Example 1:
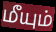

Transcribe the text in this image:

மீயும்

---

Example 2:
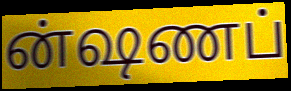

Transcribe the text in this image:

ன்ஷணப்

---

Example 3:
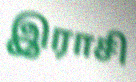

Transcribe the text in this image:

இராசி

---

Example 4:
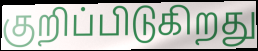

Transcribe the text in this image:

குறிப்பிடுகிறது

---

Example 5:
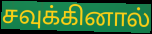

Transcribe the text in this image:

சவுக்கினால்